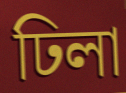
ঢিলা